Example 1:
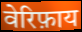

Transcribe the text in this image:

वेरिफ़ाय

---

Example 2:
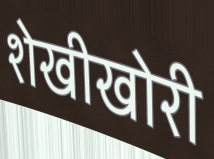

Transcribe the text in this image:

शेखीखोरी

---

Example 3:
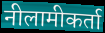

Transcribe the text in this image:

नीलामीकर्ता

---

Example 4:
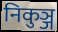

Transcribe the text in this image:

निकुञ्ज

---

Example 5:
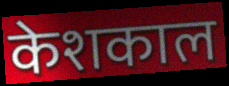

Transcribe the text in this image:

केशकाल